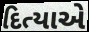
દિત્યાએ